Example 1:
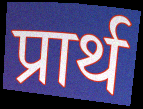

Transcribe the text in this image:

प्रार्थ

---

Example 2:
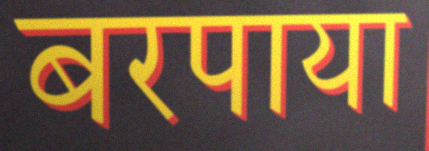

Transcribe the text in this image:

बरपाया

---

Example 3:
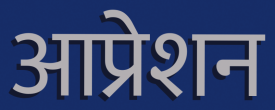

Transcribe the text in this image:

आप्रेशन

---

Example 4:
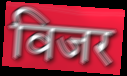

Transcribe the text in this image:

विजर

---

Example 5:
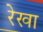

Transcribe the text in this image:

रेखा